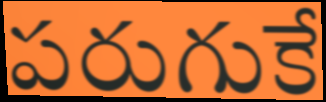
పరుగుకే